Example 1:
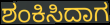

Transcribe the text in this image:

ಶಂಕಿಸಿದಾಗ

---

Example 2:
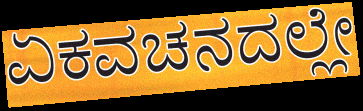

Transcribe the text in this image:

ಏಕವಚನದಲ್ಲೇ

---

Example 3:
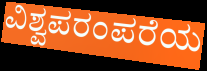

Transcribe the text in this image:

ವಿಶ್ವಪರಂಪರೆಯ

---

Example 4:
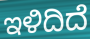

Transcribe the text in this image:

ಇಳಿದಿದೆ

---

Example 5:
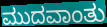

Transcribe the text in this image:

ಮುದವಾಂತು